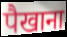
पैखाना